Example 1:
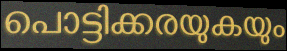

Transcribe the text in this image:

പൊട്ടിക്കരയുകയും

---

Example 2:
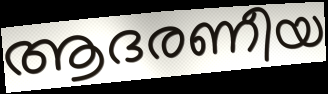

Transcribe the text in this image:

ആദരണീയ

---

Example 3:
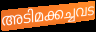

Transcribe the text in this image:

അടിമക്കച്ചവട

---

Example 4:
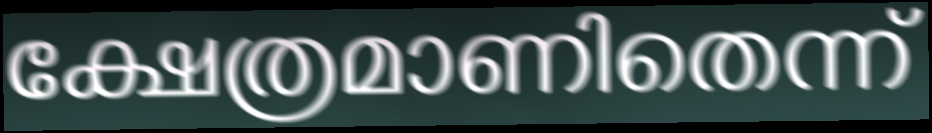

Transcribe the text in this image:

ക്ഷേത്രമാണിതെന്ന്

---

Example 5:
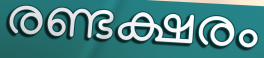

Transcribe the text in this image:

രണ്ടക്ഷരം